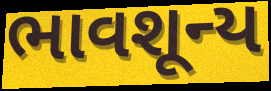
ભાવશૂન્ય